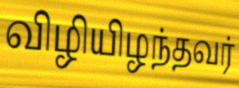
விழியிழந்தவர்